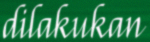
dilakukan